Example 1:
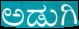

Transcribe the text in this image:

ಅಡುಗಿ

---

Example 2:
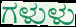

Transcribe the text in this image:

ಗಳುಳು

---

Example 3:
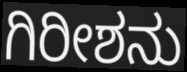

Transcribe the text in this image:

ಗಿರೀಶನು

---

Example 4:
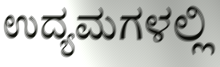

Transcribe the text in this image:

ಉದ್ಯಮಗಳಲ್ಲಿ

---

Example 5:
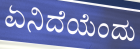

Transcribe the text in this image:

ಏನಿದೆಯೆಂದು